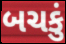
બચકું